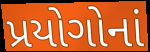
પ્રયોગોનાં